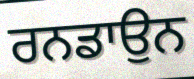
ਰਨਡਾਉਨ